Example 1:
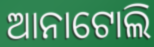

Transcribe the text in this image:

ଆନାଟୋଲି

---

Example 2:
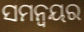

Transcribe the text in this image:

ସମନ୍ଵୟର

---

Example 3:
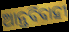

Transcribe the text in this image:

ଆନ୍ତର୍ବିବାହୀ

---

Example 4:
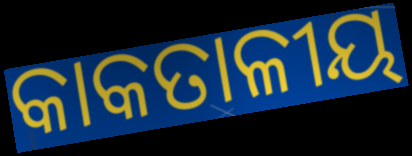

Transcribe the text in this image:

କାକତାଳୀୟ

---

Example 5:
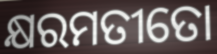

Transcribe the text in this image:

କ୍ଷରମତୀତୋ